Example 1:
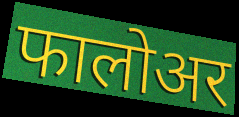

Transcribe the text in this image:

फालोअर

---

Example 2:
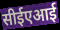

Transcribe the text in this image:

सीईएआई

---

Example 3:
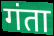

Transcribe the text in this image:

गंता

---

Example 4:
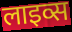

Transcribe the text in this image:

लाइव्स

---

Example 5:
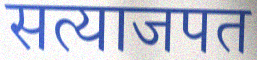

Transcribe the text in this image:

सत्याजपत